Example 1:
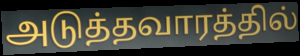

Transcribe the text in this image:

அடுத்தவாரத்தில்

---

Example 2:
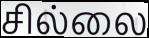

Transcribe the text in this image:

சில்லை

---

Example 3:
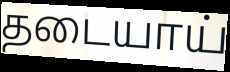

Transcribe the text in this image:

தடையாய்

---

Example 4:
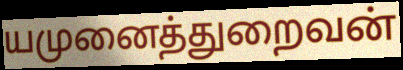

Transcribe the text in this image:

யமுனைத்துறைவன்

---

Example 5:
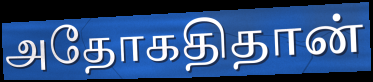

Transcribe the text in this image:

அதோகதிதான்